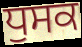
ਧੁਸਕ